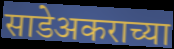
साडेअकराच्या